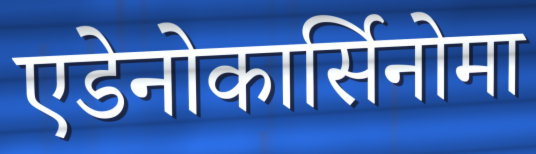
एडेनोकार्सिनोमा